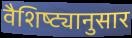
वैशिष्ट्यानुसार